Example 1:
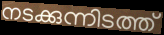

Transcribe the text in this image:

നടക്കുന്നിടത്ത്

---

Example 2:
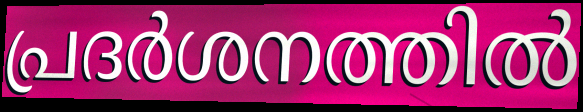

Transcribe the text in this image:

പ്രദർശനത്തിൽ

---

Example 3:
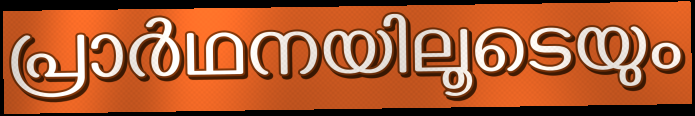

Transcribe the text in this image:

പ്രാർഥനയിലൂടെയും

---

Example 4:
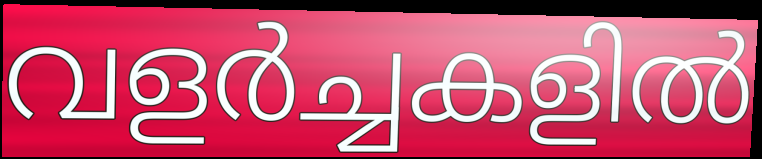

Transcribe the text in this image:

വളർച്ചകളിൽ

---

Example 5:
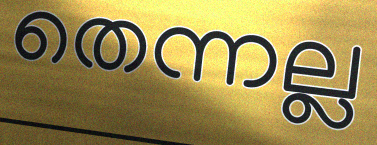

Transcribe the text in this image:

തെന്നല്ല